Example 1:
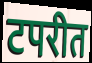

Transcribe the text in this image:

टपरीत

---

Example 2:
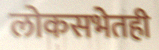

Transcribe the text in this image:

लोकसभेतही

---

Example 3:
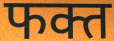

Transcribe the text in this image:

फक्‍त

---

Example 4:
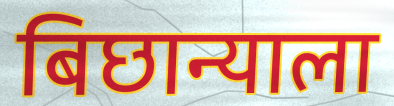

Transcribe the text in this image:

बिछान्याला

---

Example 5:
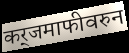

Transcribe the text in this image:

कर्जमाफीवरुन